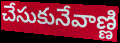
చేసుకునేవాణ్ణి